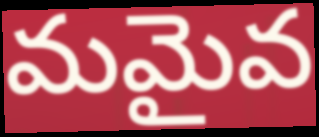
మమైవ